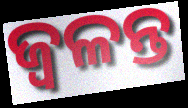
ଜ୍ବଳନ୍ତ